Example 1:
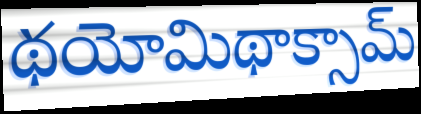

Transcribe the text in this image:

థయోమిథాక్సామ్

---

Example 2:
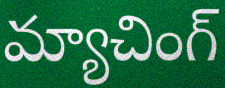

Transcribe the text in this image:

మ్యాచింగ్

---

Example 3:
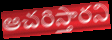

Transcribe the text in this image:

ఆచరిస్తారని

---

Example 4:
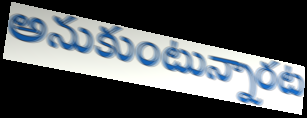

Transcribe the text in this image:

అనుకుంటున్నారట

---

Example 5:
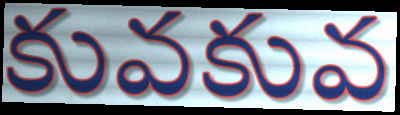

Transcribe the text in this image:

కువకువ